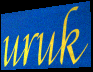
uruk